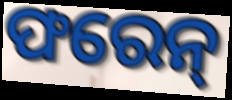
ଫରେନ୍